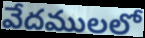
వేదములలో